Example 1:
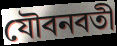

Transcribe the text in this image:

যৌবনবতী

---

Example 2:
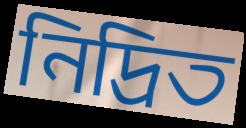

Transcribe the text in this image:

নিদ্রিত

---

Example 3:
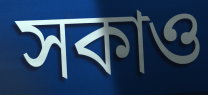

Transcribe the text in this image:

সকাও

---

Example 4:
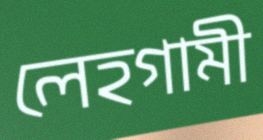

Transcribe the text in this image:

লেহগামী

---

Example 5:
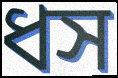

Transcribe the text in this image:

ধস